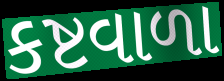
કષ્ટવાળા